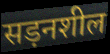
सड़नशील